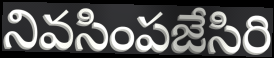
నివసింపజేసిరి